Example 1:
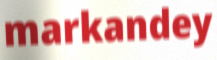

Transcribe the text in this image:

markandey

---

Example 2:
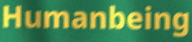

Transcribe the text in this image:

Humanbeing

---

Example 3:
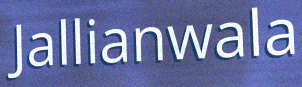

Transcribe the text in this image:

Jallianwala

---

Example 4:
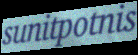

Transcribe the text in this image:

sunitpotnis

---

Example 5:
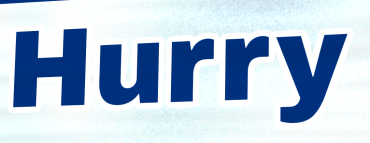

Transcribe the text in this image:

Hurry